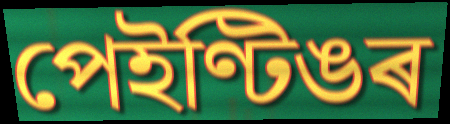
পেইণ্টিঙৰ